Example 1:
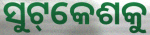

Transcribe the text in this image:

ସୁଟ୍‌କେଶକୁ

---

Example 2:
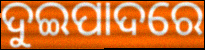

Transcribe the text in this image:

ଦୁଇପାଦରେ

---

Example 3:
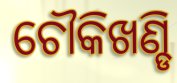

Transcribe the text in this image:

ଚୌକିଖଣ୍ଡି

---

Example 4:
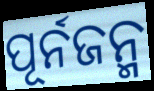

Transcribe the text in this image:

ପୂର୍ନଜନ୍ମ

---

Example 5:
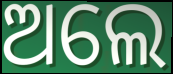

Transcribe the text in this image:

ଅଲେ